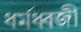
ধর্মধ্বজী